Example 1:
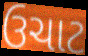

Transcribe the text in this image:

ઉચાટ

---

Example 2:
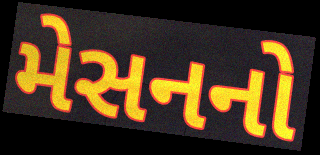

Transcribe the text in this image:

મેસનનો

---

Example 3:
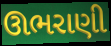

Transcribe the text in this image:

ઊભરાણી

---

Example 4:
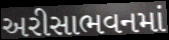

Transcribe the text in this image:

અરીસાભવનમાં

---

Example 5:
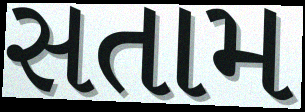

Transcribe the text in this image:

સતામ